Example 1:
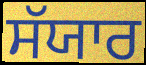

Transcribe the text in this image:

ਸੱਯਾਰ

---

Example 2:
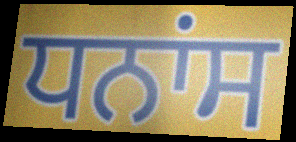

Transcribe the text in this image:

ਧਨਾਂਸ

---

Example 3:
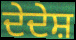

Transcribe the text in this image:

ਦੇਦੇਸ਼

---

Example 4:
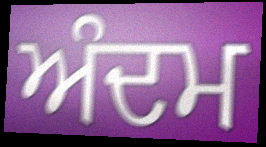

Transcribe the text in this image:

ਅੰਦਮ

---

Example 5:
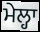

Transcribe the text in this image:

ਮੇਲ੍ਹਾ